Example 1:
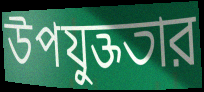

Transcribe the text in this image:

উপযুক্ততার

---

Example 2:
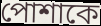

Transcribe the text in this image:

পোশাকে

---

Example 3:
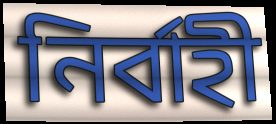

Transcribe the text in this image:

নির্বাহী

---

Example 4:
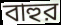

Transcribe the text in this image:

বাহুর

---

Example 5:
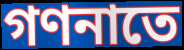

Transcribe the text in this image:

গণনাতে